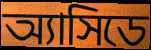
অ্যাসিডে